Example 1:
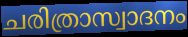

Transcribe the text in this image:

ചരിത്രാസ്വാദനം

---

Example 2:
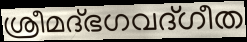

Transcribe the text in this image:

ശ്രീമദ്ഭഗവദ്ഗീത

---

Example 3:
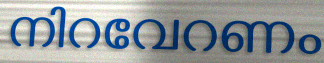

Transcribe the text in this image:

നിറവേറണം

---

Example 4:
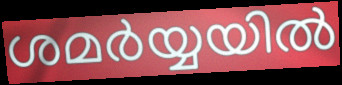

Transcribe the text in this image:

ശമർയ്യയിൽ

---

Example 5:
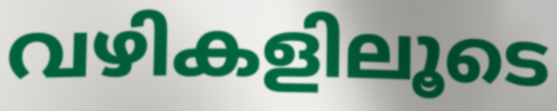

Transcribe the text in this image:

വഴികളിലൂടെ